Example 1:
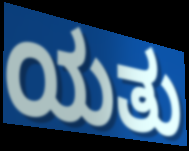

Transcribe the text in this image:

ಯತು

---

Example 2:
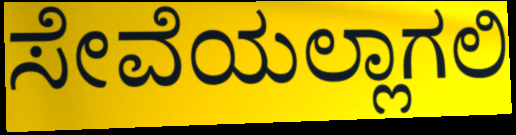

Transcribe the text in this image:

ಸೇವೆಯಲ್ಲಾಗಲಿ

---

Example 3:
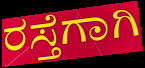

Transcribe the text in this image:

ರಸ್ತೆಗಾಗಿ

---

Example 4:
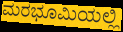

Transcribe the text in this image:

ಮರಭೂಮಿಯಲ್ಲಿ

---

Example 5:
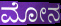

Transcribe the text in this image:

ಮೋನ